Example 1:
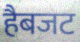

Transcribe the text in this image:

हैबजट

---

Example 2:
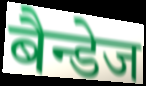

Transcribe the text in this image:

बैन्डेज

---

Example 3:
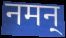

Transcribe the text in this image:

नमन्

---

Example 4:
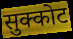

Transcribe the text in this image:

सुक्कोट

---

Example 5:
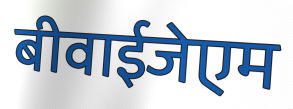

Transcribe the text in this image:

बीवाईजेएम